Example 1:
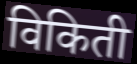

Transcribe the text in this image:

विकिती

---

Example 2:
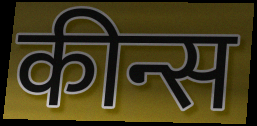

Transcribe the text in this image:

कीन्स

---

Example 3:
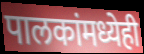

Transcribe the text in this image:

पालकांमध्येही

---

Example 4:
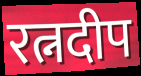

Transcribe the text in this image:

रत्नदीप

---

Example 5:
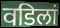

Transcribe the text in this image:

वडिलां